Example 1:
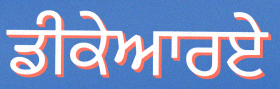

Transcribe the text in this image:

ਡੀਕੇਆਰਏ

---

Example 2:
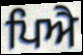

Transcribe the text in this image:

ਪਿਐ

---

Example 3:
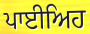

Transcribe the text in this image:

ਪਾਈਅਿਹ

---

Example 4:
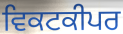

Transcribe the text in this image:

ਵਿਕਟਕੀਪਰ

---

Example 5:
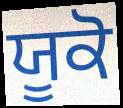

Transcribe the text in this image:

ਯੂਕੋ